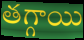
తగ్గాయి